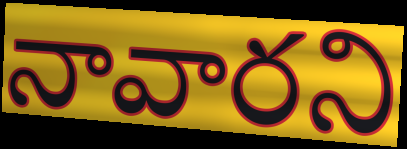
నావారని